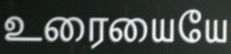
உரையையே